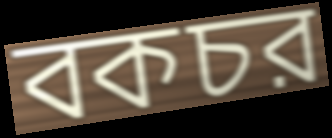
বকচর